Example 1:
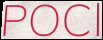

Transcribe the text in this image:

POCl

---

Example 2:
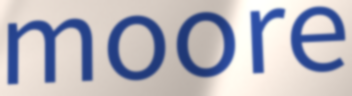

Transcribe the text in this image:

moore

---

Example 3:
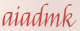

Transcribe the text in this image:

aiadmk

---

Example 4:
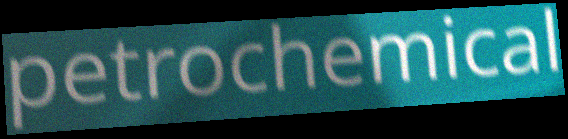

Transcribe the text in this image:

petrochemical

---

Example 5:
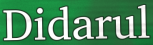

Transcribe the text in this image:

Didarul